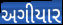
અગીયાર